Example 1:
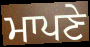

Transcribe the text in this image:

ਮਾਪਣੇ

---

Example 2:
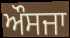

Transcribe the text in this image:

ਔਸਜਾ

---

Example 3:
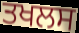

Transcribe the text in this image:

ਤਖਲਸ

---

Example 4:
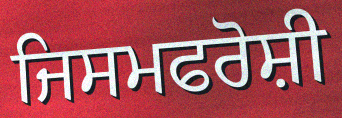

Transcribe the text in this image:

ਜਿਸਮਫਰੋਸ਼ੀ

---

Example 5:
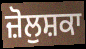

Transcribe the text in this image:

ਜ਼ੋਲੁਸ਼ਕਾ